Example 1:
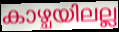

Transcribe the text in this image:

കാഴ്ചയിലല്ല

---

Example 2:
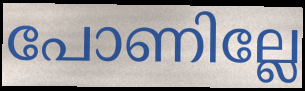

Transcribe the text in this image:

പോണില്ലേ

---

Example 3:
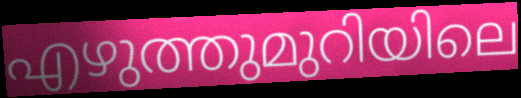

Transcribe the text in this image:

എഴുത്തുമുറിയിലെ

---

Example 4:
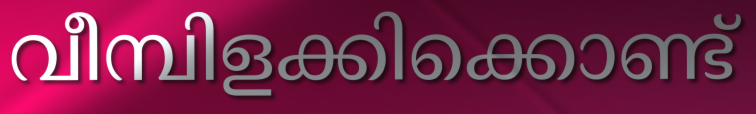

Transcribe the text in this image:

വീമ്പിളക്കിക്കൊണ്ട്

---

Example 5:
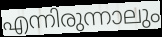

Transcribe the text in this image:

എന്നിരുന്നാലും